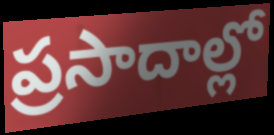
ప్రసాదాల్లో